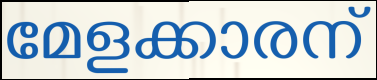
മേളക്കാരന്